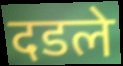
दडले